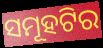
ସମୂହଟିର